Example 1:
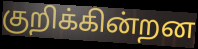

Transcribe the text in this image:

குறிக்கின்றன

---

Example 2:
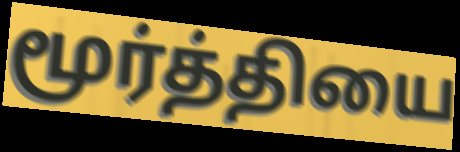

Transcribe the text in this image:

மூர்த்தியை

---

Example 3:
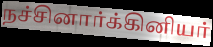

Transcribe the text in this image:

நச்சினார்க்கினியர்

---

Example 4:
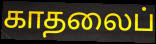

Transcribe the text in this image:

காதலைப்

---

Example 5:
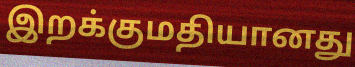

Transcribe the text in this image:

இறக்குமதியானது